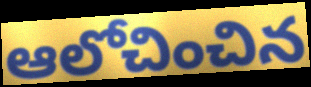
ఆలోచించిన